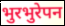
भुरभुरेपन